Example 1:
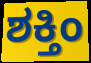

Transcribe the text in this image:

ಶಕ್ತಿಂ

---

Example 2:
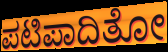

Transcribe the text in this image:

ಪಟಿಪಾದಿತೋ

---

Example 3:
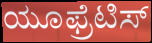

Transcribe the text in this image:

ಯೂಫ್ರೆಟಿಸ್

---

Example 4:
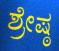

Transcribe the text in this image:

ಶ್ರೇಷ್ಠ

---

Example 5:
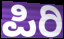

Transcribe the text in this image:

ಪಿರಿ